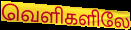
வெளிகளிலே